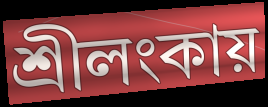
শ্রীলংকায়